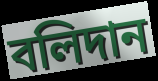
বলিদান